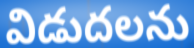
విడుదలను